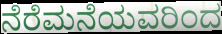
ನೆರೆಮನೆಯವರಿಂದ